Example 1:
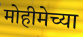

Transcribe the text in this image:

मोहीमेच्या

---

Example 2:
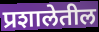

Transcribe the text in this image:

प्रशालेतील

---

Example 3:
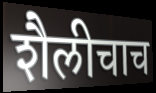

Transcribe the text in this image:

शैलीचाच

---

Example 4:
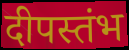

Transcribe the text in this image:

दीपस्तंभ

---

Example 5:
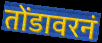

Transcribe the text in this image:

तोंडावरनं